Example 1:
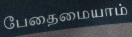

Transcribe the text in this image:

பேதைமையாம்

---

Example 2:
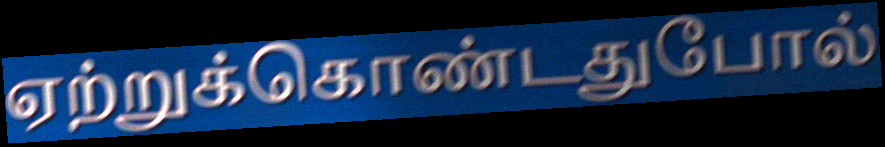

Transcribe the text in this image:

ஏற்றுக்கொண்டதுபோல்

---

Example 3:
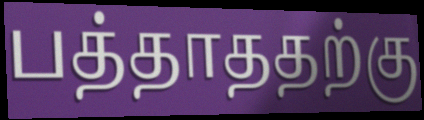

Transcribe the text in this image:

பத்தாததற்கு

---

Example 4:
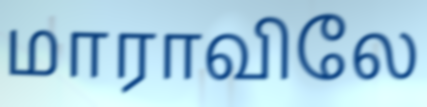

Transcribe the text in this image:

மாராவிலே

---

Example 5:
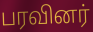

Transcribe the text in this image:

பரவினர்